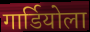
गार्डियोला